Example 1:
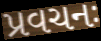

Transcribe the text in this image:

પ્રવચનઃ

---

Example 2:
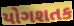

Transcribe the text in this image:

યોગશતક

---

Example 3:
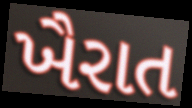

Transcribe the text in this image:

ખૈરાત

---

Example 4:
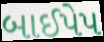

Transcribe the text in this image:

બાઈપેપ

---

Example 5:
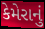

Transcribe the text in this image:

કેમેરાનું